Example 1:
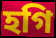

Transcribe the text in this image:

হগি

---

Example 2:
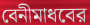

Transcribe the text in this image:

বেনীমাধবের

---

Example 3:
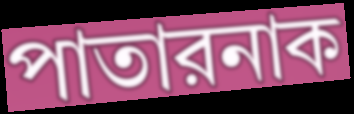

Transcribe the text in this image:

পাতারনাক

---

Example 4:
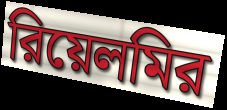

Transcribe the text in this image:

রিয়েলমির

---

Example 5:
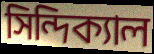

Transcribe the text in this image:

সিন্দিক্যাল